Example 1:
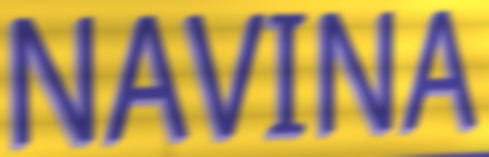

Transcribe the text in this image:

NAVINA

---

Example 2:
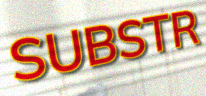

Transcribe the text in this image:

SUBSTR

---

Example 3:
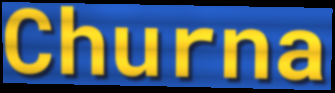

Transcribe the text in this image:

Churna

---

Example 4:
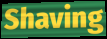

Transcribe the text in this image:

Shaving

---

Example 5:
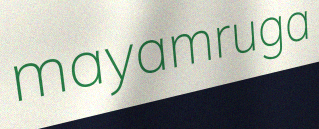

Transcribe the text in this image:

mayamruga